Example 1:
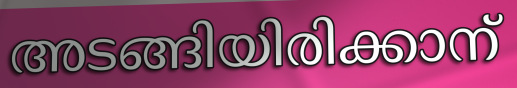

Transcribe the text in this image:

അടങ്ങിയിരിക്കാന്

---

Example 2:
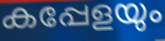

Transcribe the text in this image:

കപ്പേളയും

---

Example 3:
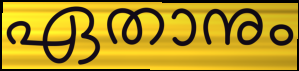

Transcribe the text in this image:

ഏതാനും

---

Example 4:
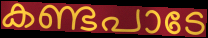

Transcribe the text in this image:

കണ്ടപാടേ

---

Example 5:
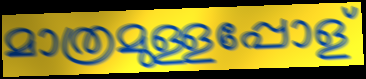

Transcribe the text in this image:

മാത്രമുള്ളപ്പോള്